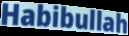
Habibullah